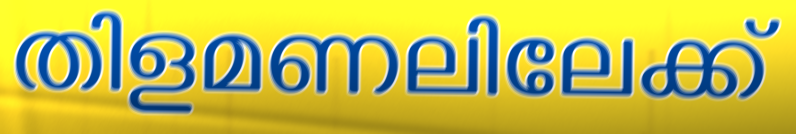
തിളമണലിലേക്ക്